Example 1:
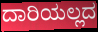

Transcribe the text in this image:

ದಾರಿಯಲ್ಲದ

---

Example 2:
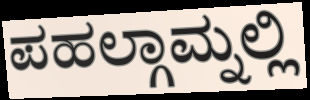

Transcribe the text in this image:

ಪಹಲ್ಗಾಮ್ನಲ್ಲಿ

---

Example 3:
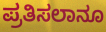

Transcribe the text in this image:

ಪ್ರತಿಸಲಾನೂ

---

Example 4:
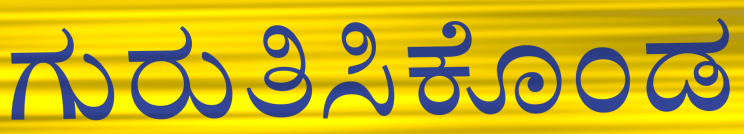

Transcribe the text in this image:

ಗುರುತಿಸಿಕೊಂಡ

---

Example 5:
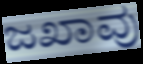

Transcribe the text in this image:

ಜಖಾವು